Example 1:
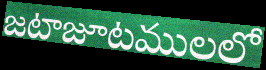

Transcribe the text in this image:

జటాజూటములలో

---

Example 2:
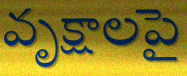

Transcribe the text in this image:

వృక్షాలపై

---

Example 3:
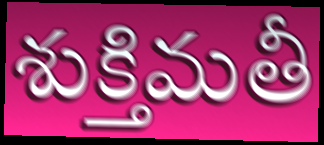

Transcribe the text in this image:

శుక్తిమతీ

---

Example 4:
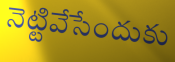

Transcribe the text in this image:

నెట్టివేసేందుకు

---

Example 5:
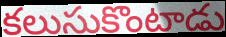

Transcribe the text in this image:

కలుసుకొంటాడు